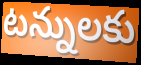
టన్నులకు